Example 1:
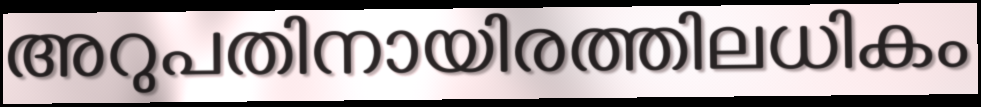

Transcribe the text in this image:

അറുപതിനായിരത്തിലധികം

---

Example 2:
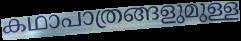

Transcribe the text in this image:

കഥാപാത്രങ്ങളുമുള്ള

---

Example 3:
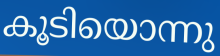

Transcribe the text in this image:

കൂടിയൊന്നു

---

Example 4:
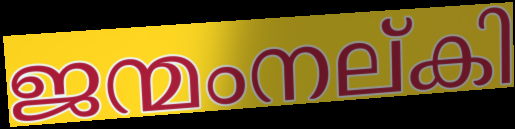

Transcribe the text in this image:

ജന്മംനല്കി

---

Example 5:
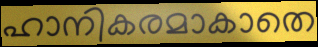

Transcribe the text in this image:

ഹാനികരമാകാതെ